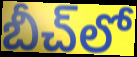
బీచ్‌లో